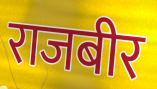
राजबीर